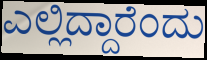
ಎಲ್ಲಿದ್ದಾರೆಂದು